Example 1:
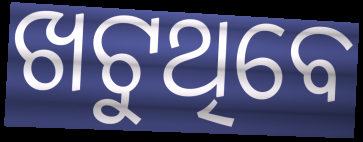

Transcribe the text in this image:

ଖଟୁଥିବେ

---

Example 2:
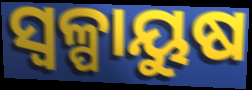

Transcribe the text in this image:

ସ୍ୱଳ୍ପାୟୁଷ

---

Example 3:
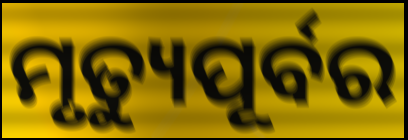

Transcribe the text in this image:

ମୃତ୍ୟୁପୂର୍ବର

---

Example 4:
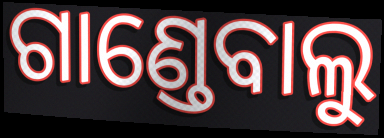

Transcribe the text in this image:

ଗାଣ୍ଡେବାଲୁ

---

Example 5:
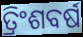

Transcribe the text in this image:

ତ୍ରିଂଶବର୍ଷ